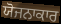
ਯੋਜਨਾਕਾਰ